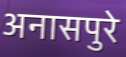
अनासपुरे